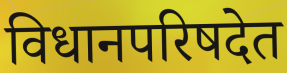
विधानपरिषदेत